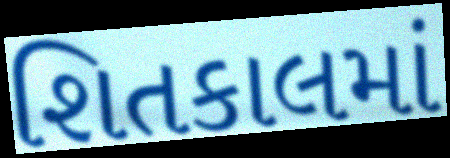
શિતકાલમાં